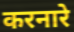
करनारे